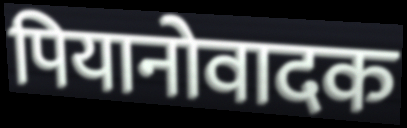
पियानोवादक